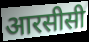
आरसीसी